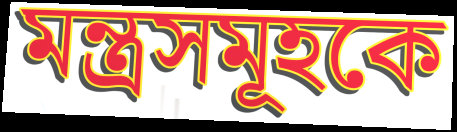
মন্ত্রসমূহকে